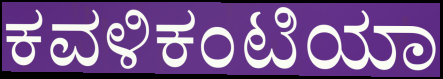
ಕವಳಿಕಂಟಿಯಾ